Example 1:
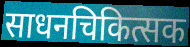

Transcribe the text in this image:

साधनचिकित्सक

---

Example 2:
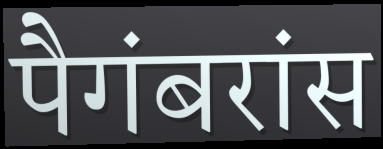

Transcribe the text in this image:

पैगंबरांस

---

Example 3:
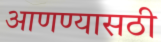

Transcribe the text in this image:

आणण्यासठी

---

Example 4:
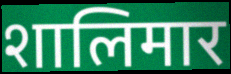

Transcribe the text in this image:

शालिमार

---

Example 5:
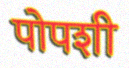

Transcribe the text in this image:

पोपशी